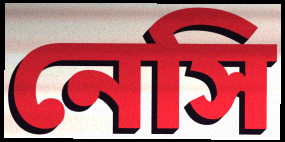
নেসি